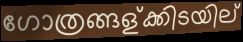
ഗോത്രങ്ങള്ക്കിടയില്